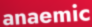
anaemic